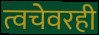
त्वचेवरही